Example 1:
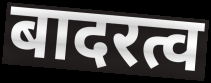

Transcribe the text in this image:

बादरत्व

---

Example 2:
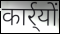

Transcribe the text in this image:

कार्र्यों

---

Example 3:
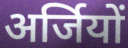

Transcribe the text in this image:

अर्जियों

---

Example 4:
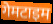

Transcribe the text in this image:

गेमटाइम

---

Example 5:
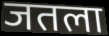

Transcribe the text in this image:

जतला